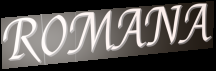
ROMANA